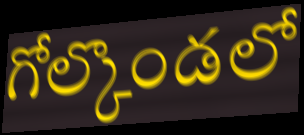
గోల్కొండలో